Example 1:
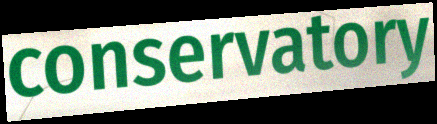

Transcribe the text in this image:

conservatory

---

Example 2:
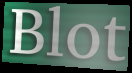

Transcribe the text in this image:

Blot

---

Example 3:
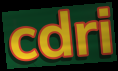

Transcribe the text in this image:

cdri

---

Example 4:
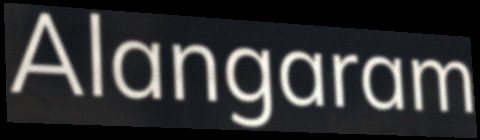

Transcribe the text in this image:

Alangaram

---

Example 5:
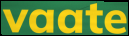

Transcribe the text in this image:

vaate